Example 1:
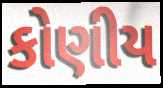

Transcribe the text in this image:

કોણીય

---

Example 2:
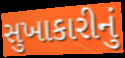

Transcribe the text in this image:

સુખાકારીનું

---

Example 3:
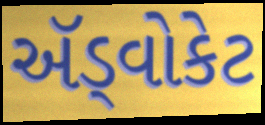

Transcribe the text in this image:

ઍડ્વોકેટ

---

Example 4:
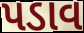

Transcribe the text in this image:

પડાવ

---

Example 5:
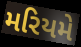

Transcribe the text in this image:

મરિયમે